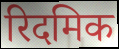
रिदमिक